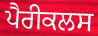
ਪੈਰੀਕਲਸ